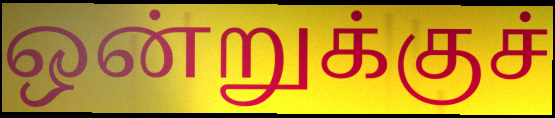
ஒன்றுக்குச்